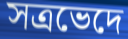
সত্ৰভেদে